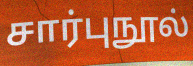
சார்புநூல்